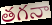
తగనా